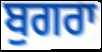
ਬੁਗਰਾ